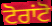
ਟੋਰਾਂਟੋ